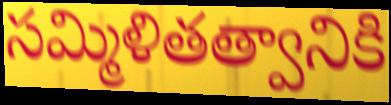
సమ్మిళితత్వానికి